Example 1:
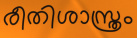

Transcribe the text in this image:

രീതിശാസ്ത്രം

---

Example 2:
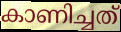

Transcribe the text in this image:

കാണിച്ചത്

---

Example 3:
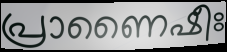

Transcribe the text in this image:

പ്രാണൈഷീഃ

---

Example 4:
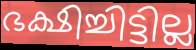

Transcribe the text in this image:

ഭക്ഷിച്ചിട്ടില്ല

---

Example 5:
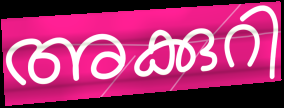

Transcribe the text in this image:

അക്കുറി